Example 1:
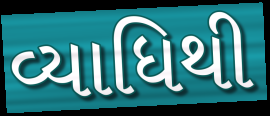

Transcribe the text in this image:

વ્યાધિથી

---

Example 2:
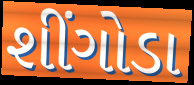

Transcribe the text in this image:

શીંગોડા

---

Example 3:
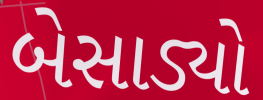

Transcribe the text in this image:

બેસાડ્યો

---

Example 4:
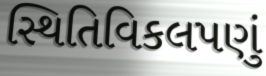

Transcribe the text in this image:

સ્થિતિવિકલપણું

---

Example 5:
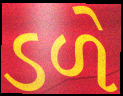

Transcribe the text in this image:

ડળે